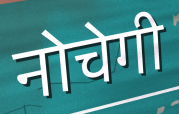
नोचेगी